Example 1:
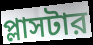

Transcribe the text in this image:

প্লাসটার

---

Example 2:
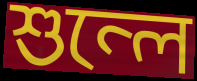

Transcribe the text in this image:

শুন্লে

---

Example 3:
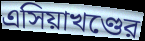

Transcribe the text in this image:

এসিয়াখণ্ডের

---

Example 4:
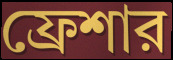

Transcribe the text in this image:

ফ্রেশার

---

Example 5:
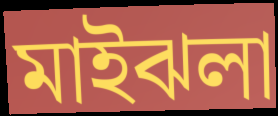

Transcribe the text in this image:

মাইঝলা